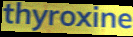
thyroxine